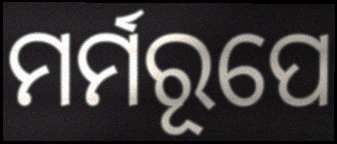
ମର୍ମରୂପେ